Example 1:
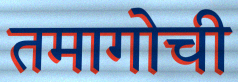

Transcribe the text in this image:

तमागोची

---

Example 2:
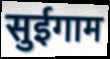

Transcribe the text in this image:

सुईगाम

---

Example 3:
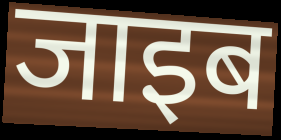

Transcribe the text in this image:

जाइब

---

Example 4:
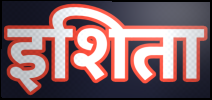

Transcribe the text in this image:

इशिता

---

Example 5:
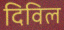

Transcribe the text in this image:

दिविल